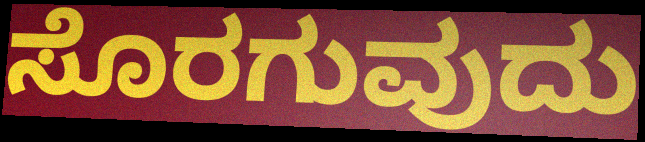
ಸೊರಗುವುದು